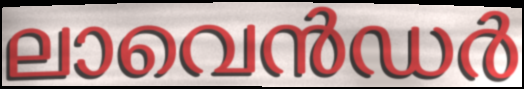
ലാവെൻഡർ